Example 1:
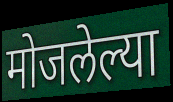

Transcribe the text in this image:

मोजलेल्या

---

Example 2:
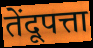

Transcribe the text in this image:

तेंदूपत्ता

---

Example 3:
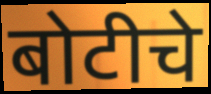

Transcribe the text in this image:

बोटीचे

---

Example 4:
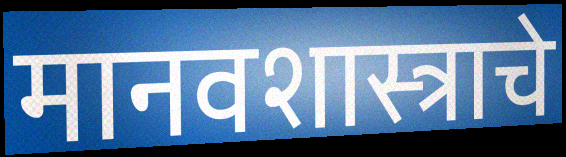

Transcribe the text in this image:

मानवशास्त्राचे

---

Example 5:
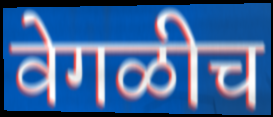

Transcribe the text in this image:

वेगळीच